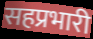
सहप्रभारी